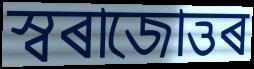
স্বৰাজোত্তৰ